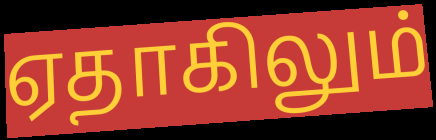
ஏதாகிலும்